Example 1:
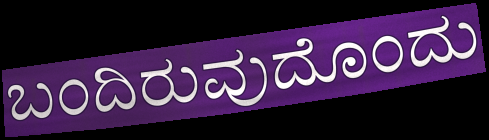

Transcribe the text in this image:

ಬಂದಿರುವುದೊಂದು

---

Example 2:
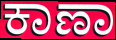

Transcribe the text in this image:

ಕಾಣಾ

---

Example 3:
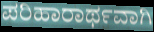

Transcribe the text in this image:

ಪರಿಹಾರಾರ್ಥವಾಗಿ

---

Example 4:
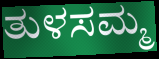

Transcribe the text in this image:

ತುಳಸಮ್ಮ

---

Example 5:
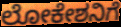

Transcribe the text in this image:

ಲೋಕೇಶನಿಗೆ